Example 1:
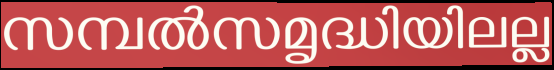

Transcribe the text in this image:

സമ്പൽസമൃദ്ധിയിലല്ല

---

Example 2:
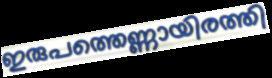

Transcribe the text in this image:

ഇരുപത്തെണ്ണായിരത്തി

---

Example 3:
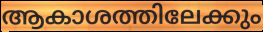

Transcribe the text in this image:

ആകാശത്തിലേക്കും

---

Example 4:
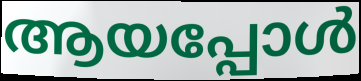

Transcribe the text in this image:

ആയപ്പോൾ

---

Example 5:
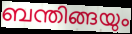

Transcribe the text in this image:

ബന്തിങ്ങയും